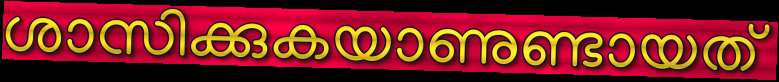
ശാസിക്കുകയാണുണ്ടായത്